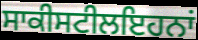
ਸਾਕੀਸਟੀਲਇਹਨਾਂ